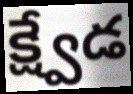
క్ష్వేడ